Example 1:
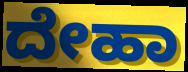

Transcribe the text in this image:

ದೇಹಾ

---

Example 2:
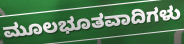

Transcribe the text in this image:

ಮೂಲಭೂತವಾದಿಗಳು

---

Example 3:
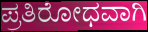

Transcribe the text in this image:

ಪ್ರತಿರೋಧವಾಗಿ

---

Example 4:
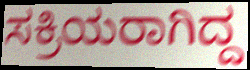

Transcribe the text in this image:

ಸಕ್ರಿಯರಾಗಿದ್ದ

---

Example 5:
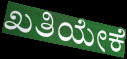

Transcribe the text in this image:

ಖತಿಯೇಕೆ